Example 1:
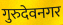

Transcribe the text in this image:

गुरुदेवनगर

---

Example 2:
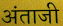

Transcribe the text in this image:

अंताजी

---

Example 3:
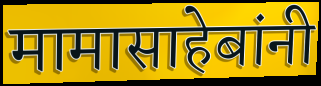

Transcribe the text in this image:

मामासाहेबांनी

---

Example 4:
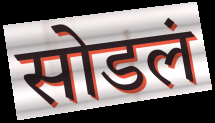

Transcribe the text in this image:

सोडलं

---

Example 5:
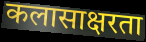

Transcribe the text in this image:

कलासाक्षरता